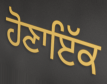
ਹੋਣਾਇੱਕ